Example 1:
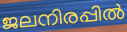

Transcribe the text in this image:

ജലനിരപ്പിൽ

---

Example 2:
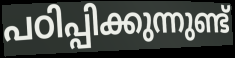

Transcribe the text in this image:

പഠിപ്പിക്കുന്നുണ്ട്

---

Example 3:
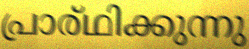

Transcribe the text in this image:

പ്രാര്ഥിക്കുന്നു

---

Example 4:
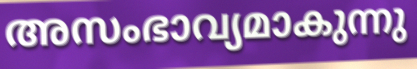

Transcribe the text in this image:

അസംഭാവ്യമാകുന്നു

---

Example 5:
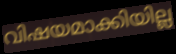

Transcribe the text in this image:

വിഷയമാക്കിയില്ല